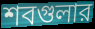
শবগুলার